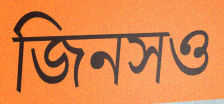
জিনসও